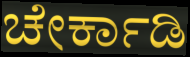
ಚೇರ್ಕಾಡಿ